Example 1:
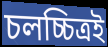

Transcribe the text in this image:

চলচ্চিত্ৰই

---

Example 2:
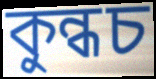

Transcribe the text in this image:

কুন্ধচ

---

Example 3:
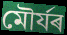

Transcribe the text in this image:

মৌৰ্যৰ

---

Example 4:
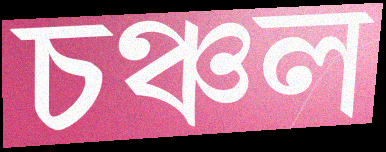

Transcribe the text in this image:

চঞ্চল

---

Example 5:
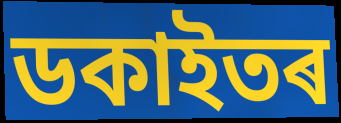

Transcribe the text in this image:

ডকাইতৰ